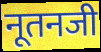
नूतनजी